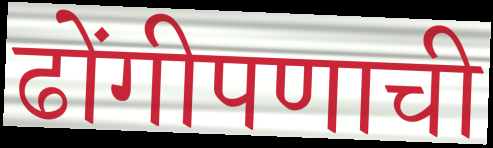
ढोंगीपणाची